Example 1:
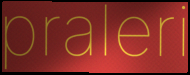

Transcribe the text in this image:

praleri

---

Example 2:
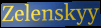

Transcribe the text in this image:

Zelenskyy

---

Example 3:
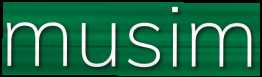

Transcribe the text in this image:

musim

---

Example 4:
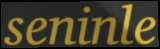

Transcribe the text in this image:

seninle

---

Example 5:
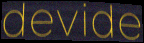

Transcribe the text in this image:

devide